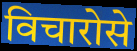
विचारोसे